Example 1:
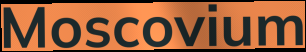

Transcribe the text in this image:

Moscovium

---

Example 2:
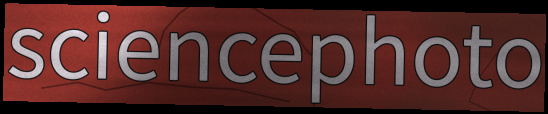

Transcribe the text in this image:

sciencephoto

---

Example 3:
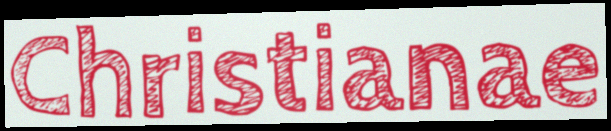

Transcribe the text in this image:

Christianae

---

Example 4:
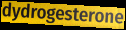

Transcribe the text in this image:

dydrogesterone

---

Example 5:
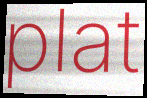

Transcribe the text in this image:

plat